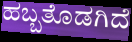
ಹಬ್ಬತೊಡಗಿದೆ